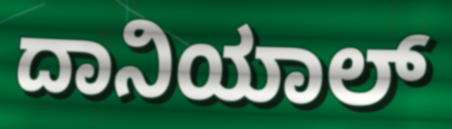
ದಾನಿಯಾಲ್